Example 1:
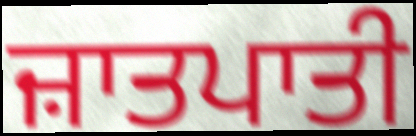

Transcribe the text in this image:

ਜ਼ਾਤਪਾਤੀ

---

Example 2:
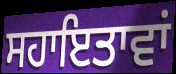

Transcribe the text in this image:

ਸਹਾਇਤਾਵਾਂ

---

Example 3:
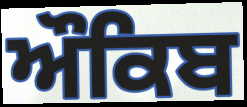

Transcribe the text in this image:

ਔਕਿਬ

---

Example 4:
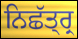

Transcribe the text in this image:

ਨਿਛੱਤ੍ਰ੍ਰ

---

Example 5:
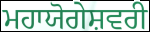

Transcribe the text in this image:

ਮਹਾਯੋਗੇਸ਼ਵਰੀ